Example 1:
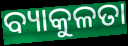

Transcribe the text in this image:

ବ୍ୟାକୁଳତା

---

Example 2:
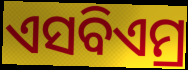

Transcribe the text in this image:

ଏସବିଏମ୍ର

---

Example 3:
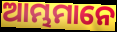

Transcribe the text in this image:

ଆମ୍ଭମାନେ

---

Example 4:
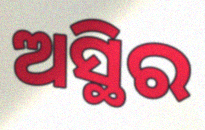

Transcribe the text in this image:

ଅସ୍ଥିର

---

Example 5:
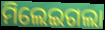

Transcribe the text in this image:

ମିଲେଇଗଲା